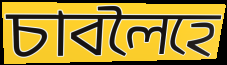
চাবলৈহে